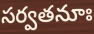
సర్వతనూః